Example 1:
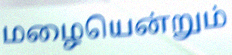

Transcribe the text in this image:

மழையென்றும்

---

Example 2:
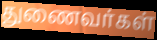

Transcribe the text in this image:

துணைவர்கள்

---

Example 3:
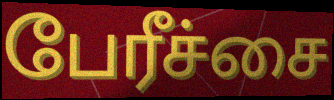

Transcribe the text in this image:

பேரீச்சை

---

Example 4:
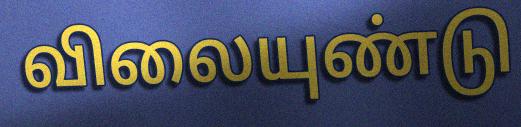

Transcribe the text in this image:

விலையுண்டு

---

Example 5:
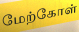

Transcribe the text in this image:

மேற்கோள்